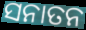
ସନାତନ